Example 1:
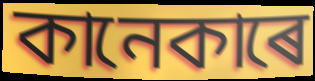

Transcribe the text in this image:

কানেকাৰে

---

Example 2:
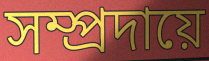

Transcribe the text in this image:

সম্প্ৰদায়ে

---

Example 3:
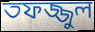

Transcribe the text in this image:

তফজ্জুল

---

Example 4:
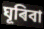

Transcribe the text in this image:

ঘূৰিবা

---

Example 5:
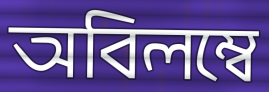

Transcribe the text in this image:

অবিলম্বে